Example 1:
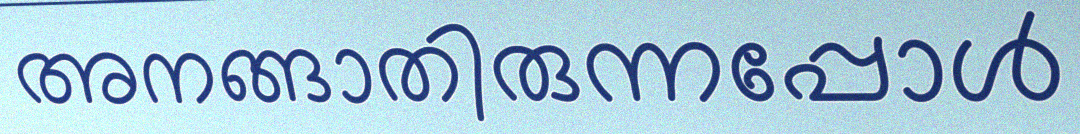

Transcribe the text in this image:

അനങ്ങാതിരുന്നപ്പോൾ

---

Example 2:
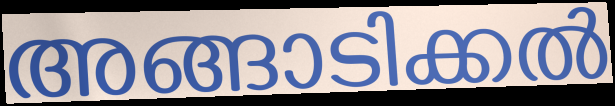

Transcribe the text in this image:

അങ്ങാടിക്കൽ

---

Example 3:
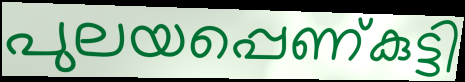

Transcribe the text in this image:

പുലയപ്പെണ്കുട്ടി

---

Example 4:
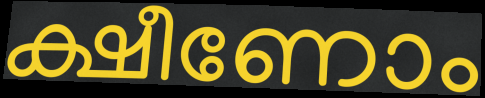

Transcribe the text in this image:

ക്ഷീണോം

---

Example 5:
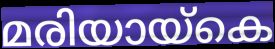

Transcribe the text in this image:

മരിയായ്കെ